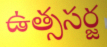
ఉత్ససర్జ